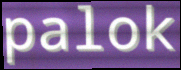
palok